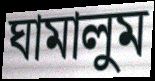
ঘামালুম